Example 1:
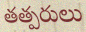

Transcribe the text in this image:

తత్పరులు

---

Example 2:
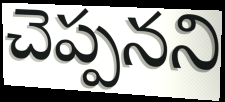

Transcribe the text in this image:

చెప్పనని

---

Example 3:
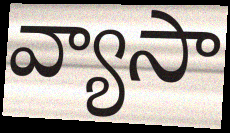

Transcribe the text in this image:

వ్యాసా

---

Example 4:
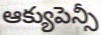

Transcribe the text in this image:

ఆక్యుపెన్సీ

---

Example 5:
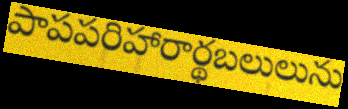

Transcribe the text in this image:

పాపపరిహారార్థబలులును